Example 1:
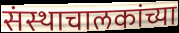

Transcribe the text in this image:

संस्थाचालकांच्या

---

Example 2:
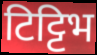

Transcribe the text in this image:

टिट्टिभ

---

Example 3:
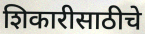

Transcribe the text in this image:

शिकारीसाठीचे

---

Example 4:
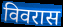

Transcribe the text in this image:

विवरास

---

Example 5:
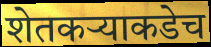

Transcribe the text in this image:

शेतकऱ्याकडेच